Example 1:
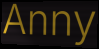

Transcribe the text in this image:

Anny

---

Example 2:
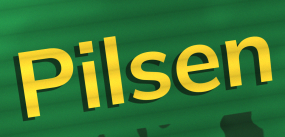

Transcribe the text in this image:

Pilsen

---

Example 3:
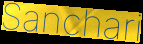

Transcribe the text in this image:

Sanchari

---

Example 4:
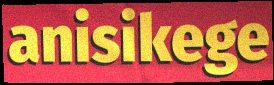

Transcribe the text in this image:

anisikege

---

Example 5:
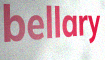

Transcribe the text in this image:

bellary